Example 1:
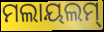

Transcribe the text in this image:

ମଲାୟଲମ୍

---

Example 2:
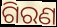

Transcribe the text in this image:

ଗିରଣ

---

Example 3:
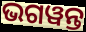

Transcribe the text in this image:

ଭଗୱନ୍ତ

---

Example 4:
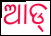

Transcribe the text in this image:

ଆଡ୍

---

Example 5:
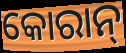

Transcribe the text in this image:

କୋରାନ୍